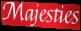
Majesties